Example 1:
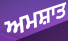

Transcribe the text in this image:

ਅਮਸ਼ਾਤ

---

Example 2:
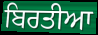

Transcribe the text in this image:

ਬਿਰਤੀਆ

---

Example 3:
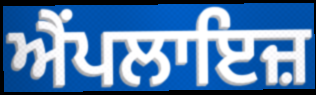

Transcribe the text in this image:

ਐਂਪਲਾਇਜ਼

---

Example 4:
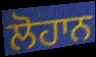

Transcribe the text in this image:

ਲੋਹਾਨ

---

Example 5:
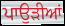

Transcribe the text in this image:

ਪਾਉੜੀਆਂ